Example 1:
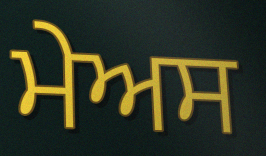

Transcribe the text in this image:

ਮੇਅਸ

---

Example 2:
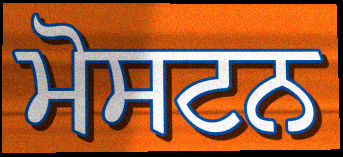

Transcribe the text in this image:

ਮੋਸਟਨ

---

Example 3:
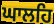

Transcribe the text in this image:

ਘਾਲਹਿ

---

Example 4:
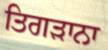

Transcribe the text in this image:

ਤਿਗੜਾਨਾ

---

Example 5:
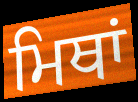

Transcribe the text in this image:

ਮਿਥਾਂ